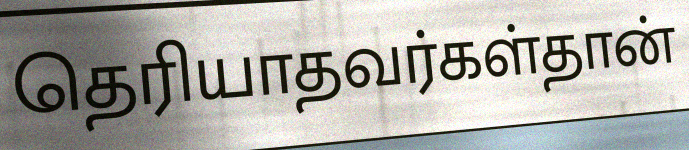
தெரியாதவர்கள்தான்